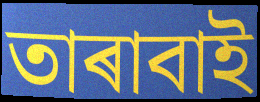
তাৰাবাই